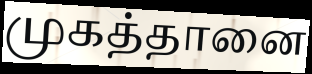
முகத்தானை